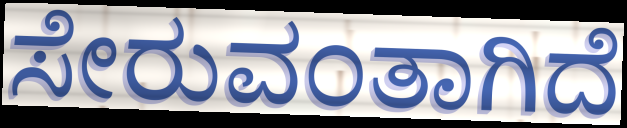
ಸೇರುವಂತಾಗಿದೆ